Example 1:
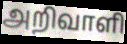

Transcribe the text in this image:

அறிவாளி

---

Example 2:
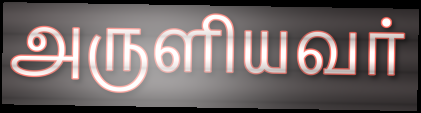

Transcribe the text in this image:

அருளியவர்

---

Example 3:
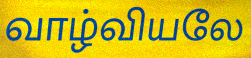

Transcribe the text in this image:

வாழ்வியலே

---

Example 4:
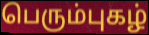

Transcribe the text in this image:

பெரும்புகழ்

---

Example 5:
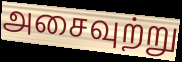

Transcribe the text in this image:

அசைவுற்று